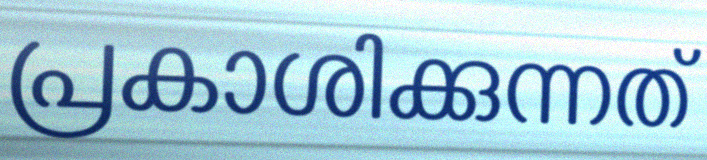
പ്രകാശിക്കുന്നത്